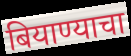
बियाण्याचा